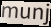
munj